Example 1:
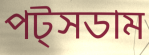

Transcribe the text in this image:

পট্‌সডাম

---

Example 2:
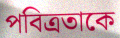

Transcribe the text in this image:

পবিত্রতাকে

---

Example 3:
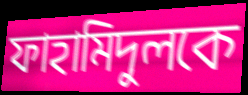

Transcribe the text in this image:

ফাহামিদুলকে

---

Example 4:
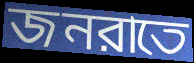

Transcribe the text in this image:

জনরাতে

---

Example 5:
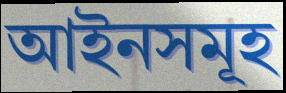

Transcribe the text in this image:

আইনসমূহ